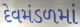
દેવમંડળમાં